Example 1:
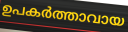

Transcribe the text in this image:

ഉപകർത്താവായ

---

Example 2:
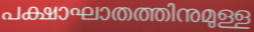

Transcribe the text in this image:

പക്ഷാഘാതത്തിനുമുള്ള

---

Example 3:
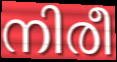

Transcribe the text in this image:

നിരീ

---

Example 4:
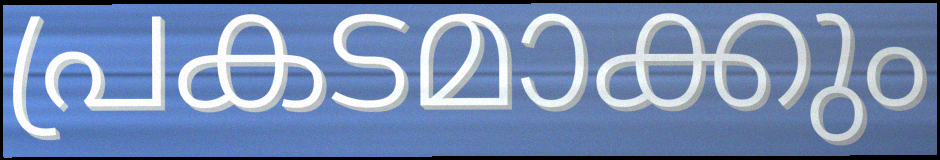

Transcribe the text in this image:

പ്രകടമാക്കും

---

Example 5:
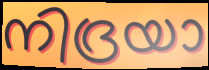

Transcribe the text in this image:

നിദ്രയാ